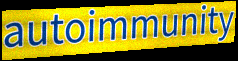
autoimmunity